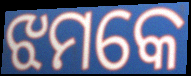
ଝମକେ